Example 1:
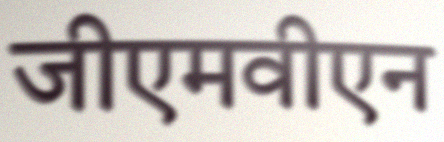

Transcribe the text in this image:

जीएमवीएन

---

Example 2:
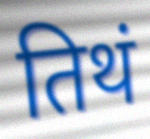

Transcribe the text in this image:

तिथं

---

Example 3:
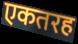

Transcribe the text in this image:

एकतरह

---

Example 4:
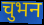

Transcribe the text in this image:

चुभन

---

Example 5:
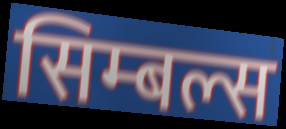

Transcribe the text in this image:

सिम्बल्स